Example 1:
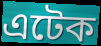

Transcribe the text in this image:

এটেক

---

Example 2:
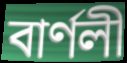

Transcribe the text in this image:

বাৰ্ণলী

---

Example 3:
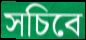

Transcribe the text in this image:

সচিবে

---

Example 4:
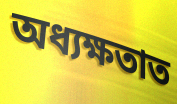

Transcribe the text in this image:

অধ্যক্ষতাত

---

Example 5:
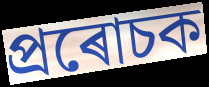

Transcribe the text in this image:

প্ৰৰোচক